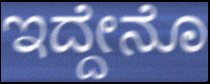
ಇದ್ದೇನೊ